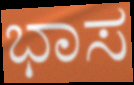
ಭಾಸ